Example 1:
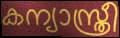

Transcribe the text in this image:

കന്യാസ്ത്രീ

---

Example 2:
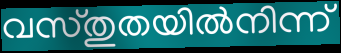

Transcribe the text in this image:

വസ്തുതയിൽനിന്ന്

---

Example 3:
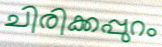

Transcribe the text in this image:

ചിരിക്കപ്പുറം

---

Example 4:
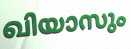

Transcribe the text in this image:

ഖിയാസും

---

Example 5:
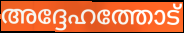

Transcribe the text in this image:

അദ്ദേഹത്തോട്